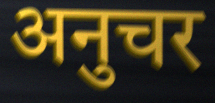
अनुचर